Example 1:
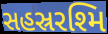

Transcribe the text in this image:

સહસ્રરશ્મિ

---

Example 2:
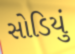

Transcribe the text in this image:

સોડિયું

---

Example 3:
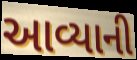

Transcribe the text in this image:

આવ્યાની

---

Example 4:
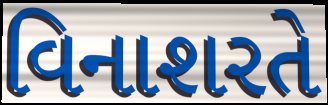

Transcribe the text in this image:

વિનાશરતે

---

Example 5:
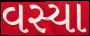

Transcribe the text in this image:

વસ્યા